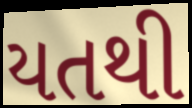
યતથી